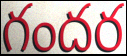
గందర